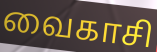
வைகாசி